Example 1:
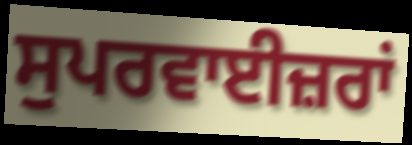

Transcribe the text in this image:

ਸੁਪਰਵਾਈਜ਼ਰਾਂ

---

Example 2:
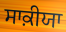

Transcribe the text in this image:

ਸਾਕ਼ੀਯਾ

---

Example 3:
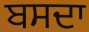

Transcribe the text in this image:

ਬਸਦਾ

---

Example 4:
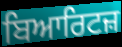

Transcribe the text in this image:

ਬਿਆਰਿਟਜ਼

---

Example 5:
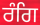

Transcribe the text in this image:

ਰੰਗਿ